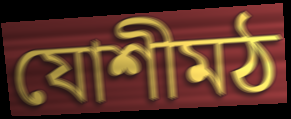
যোশীমঠ